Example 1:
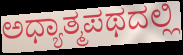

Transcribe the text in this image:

ಅಧ್ಯಾತ್ಮಪಥದಲ್ಲಿ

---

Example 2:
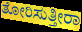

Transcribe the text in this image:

ತೋರಿಸುತ್ತೀರಾ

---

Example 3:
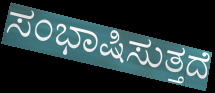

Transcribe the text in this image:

ಸಂಭಾಷಿಸುತ್ತದೆ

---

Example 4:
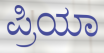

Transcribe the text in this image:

ಪ್ರಿಯಾ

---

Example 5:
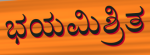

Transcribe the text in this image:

ಭಯಮಿಶ್ರಿತ